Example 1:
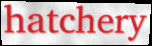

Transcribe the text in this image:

hatchery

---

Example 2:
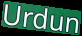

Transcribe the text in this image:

Urdun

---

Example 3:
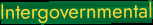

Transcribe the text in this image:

Intergovernmental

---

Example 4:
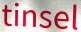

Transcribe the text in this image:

tinsel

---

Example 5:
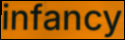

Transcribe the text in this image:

infancy